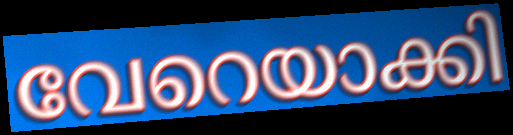
വേറെയാക്കി